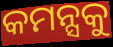
କମନ୍ସକୁ